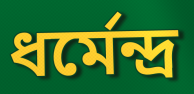
ধৰ্মেন্দ্ৰ